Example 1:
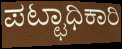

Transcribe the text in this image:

ಪಟ್ಟಾಧಿಕಾರಿ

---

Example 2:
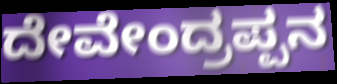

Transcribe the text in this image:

ದೇವೇಂದ್ರಪ್ಪನ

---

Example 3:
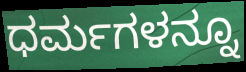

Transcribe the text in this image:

ಧರ್ಮಗಳನ್ನೂ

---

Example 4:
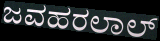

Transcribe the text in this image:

ಜವಹರಲಾಲ್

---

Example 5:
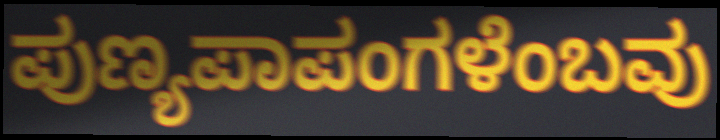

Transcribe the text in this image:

ಪುಣ್ಯಪಾಪಂಗಳೆಂಬವು